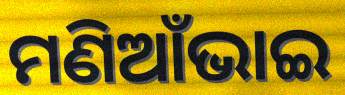
ମଣିଆଁଭାଇ